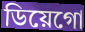
ডিয়েগো